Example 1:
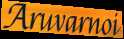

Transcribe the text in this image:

Aruvarnoi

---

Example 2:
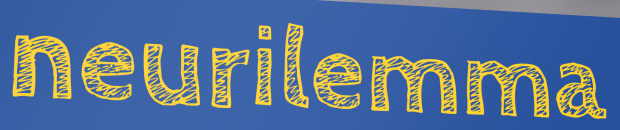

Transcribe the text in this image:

neurilemma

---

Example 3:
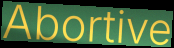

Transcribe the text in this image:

Abortive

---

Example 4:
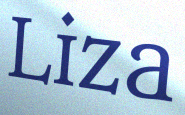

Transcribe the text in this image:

Liza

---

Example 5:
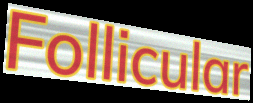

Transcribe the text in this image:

Follicular